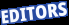
EDITORS